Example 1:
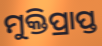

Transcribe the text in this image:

ମୁକ୍ତିପ୍ରାପ୍ତ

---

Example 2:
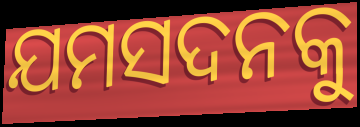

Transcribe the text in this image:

ଯମସଦନକୁ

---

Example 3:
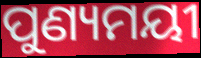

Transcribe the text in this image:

ପୁଣ୍ୟମୟୀ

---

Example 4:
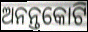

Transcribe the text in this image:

ଅନନ୍ତକୋଟି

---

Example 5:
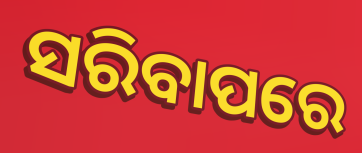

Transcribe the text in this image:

ସରିବାପରେ